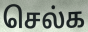
செல்க